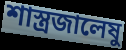
শাস্ত্রজালেষু